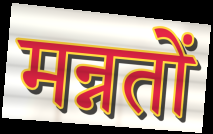
मन्नतों